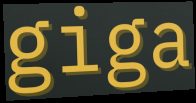
giga